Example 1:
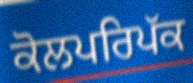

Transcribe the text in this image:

ਕੋਲਪਰਿਪੱਕ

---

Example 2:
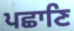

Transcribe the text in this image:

ਪਛਾਣਿ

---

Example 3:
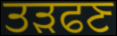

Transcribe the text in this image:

ਤੜਫਣ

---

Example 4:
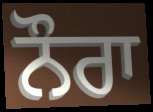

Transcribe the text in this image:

ਨੌਰਾ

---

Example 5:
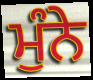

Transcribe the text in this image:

ਮੁੰਨੇ